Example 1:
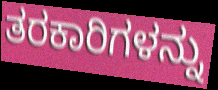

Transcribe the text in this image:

ತರಕಾರಿಗಳನ್ನು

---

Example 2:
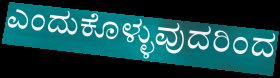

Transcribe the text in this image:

ಎಂದುಕೊಳ್ಳುವುದರಿಂದ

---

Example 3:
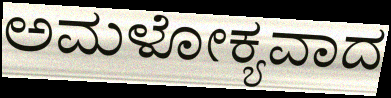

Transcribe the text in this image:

ಅಮಳೋಕ್ಯವಾದ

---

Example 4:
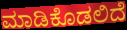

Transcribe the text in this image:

ಮಾಡಿಕೊಡಲಿದೆ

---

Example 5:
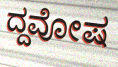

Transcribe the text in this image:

ದ್ದವೋಷ